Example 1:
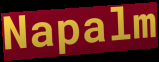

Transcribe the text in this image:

Napalm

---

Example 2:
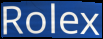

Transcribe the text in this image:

Rolex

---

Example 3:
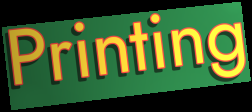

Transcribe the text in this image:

Printing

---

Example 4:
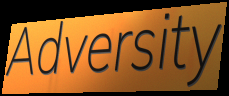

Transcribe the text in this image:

Adversity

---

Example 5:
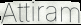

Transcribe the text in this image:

Attiram